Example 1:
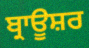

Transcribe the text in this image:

ਬ੍ਰਾਊਸ਼ਰ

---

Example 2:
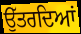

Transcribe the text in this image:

ਉੱਤਰਦਿਆਂ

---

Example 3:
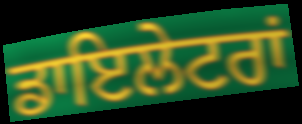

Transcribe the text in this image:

ਡਾਇਲੇਟਰਾਂ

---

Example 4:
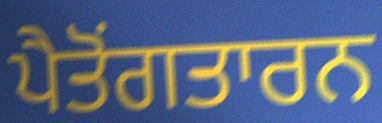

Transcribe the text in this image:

ਪੈਤੋਂਗਤਾਰਨ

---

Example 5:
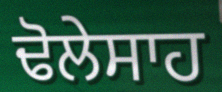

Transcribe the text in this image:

ਢੋਲੇਸਾਹ